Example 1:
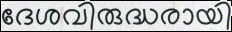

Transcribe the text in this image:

ദേശവിരുദ്ധരായി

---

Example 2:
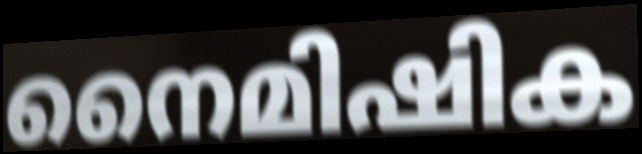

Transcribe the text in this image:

നൈമിഷിക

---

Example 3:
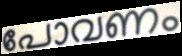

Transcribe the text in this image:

പോവണം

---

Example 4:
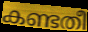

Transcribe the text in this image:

കണ്ടതീ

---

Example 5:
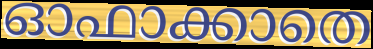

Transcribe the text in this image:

ഓഫാക്കാതെ